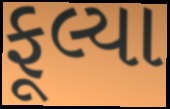
ફૂલ્યા